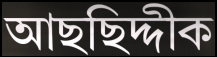
আছছিদ্দীক